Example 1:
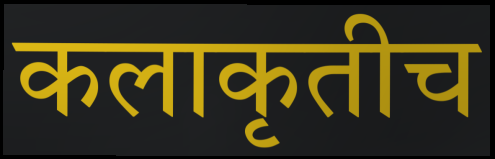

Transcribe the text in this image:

कलाकृतीच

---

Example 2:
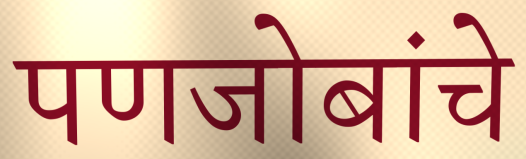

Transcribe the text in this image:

पणजोबांचे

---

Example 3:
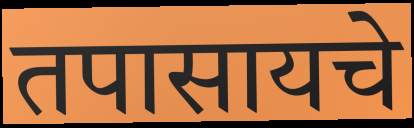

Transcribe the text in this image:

तपासायचे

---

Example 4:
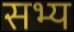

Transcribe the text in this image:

सभ्य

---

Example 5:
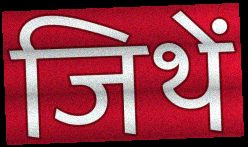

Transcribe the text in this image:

जिथें